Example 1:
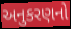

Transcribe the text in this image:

અનુકરણનો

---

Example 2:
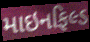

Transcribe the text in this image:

માઇનફિલ્ડ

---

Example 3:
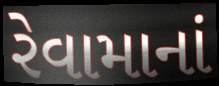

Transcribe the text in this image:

રેવામાનાં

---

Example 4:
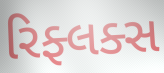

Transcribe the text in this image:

રિફ્લક્સ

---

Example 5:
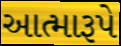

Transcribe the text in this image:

આત્મારૂપે